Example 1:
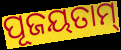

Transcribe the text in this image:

ପୂଜୟତାମ୍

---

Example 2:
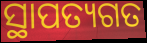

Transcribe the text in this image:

ସ୍ଥାପତ୍ୟଗତ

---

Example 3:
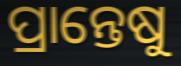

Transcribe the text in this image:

ପ୍ରାନ୍ତେଷୁ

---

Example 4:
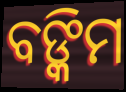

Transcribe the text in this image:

ବଙ୍କିମ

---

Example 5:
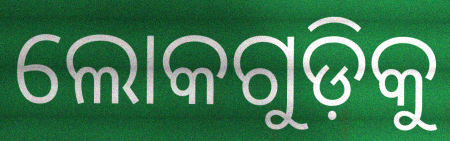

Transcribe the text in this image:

ଲୋକଗୁଡ଼ିକୁ